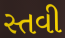
સ્તવી